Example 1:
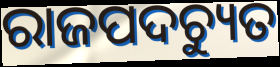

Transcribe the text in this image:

ରାଜପଦଚ୍ୟୁତ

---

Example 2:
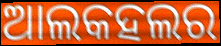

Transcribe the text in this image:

ଆଲକହଲର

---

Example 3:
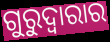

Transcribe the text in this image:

ଗୁରୁଦ୍ୱାରାର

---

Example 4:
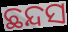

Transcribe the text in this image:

ଛନ୍ଦସ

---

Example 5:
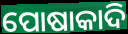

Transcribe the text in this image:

ପୋଷାକାଦି